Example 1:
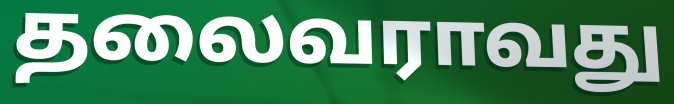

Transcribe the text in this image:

தலைவராவது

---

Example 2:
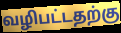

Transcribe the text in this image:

வழிபட்டதற்கு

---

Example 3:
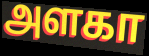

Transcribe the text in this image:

அளகா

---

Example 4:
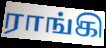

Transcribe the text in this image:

ராங்கி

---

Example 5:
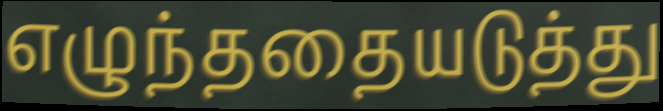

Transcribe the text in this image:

எழுந்ததையடுத்து